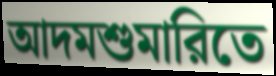
আদমশুমারিতে